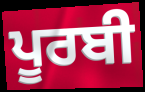
ਪੂਰਬੀ